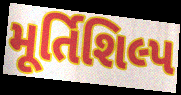
મૂર્તિશિલ્પ